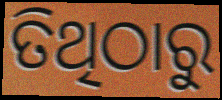
ତିଥିଠାରୁ